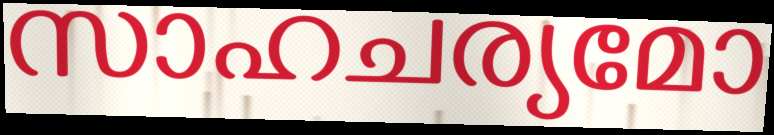
സാഹചര്യമോ